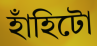
হাঁহিটো